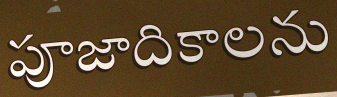
పూజాదికాలను